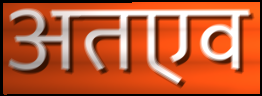
अतएव